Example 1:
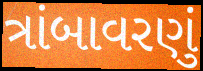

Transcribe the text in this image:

ત્રાંબાવરણું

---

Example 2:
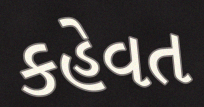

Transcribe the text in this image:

કહેવત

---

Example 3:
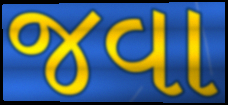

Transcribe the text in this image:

જવા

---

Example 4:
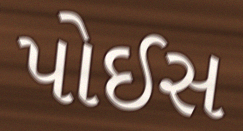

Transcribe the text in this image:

પોઈસ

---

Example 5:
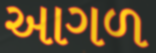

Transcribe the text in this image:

આગળ